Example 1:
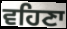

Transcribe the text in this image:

ਵਹਿਣਾ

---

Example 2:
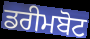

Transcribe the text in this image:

ਡਰੀਮਬੋਟ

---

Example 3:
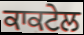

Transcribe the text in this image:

ਕਾਕਟੇਲ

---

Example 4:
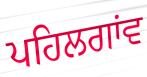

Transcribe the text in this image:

ਪਹਿਲਗਾਂਵ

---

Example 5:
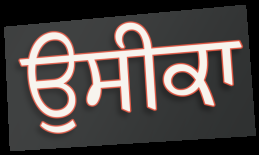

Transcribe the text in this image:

ਉਸੀਕਾ